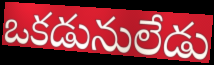
ఒకడునులేడు